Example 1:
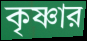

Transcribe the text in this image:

কৃষ্ণার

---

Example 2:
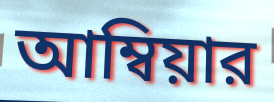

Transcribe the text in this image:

আম্বিয়ার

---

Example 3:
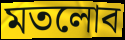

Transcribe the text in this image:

মতলোব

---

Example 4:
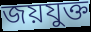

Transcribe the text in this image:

জয়যুক্ত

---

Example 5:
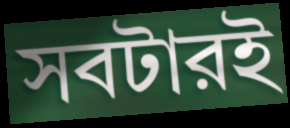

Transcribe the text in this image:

সবটারই